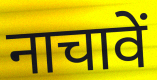
नाचावें